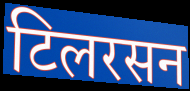
टिलरसन